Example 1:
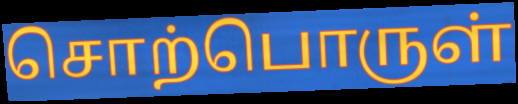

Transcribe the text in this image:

சொற்பொருள்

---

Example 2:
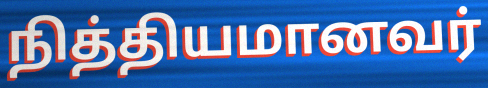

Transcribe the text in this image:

நித்தியமானவர்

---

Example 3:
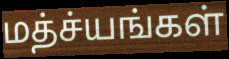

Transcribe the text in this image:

மத்ச்யங்கள்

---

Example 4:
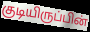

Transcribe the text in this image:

குடியிருப்பின்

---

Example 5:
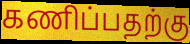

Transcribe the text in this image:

கணிப்பதற்கு